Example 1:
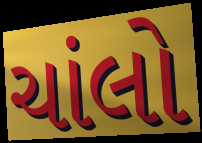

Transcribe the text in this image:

ચાંલો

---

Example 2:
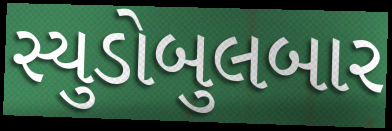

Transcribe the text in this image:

સ્યુડોબુલબાર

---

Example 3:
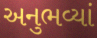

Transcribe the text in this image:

અનુભવ્યાં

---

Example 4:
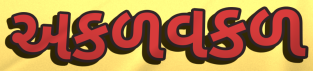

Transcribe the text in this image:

અકળવકળ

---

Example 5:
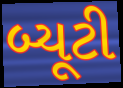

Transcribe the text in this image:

બ્યૂટી